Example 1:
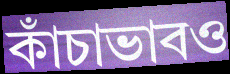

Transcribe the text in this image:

কাঁচাভাবও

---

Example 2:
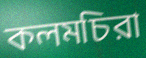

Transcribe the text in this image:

কলমচিরা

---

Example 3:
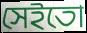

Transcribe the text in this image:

সেইতো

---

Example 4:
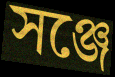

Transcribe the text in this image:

সঞ্জে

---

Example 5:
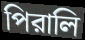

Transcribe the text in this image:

পিরালি